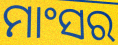
ମାଂସର